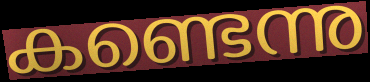
കണ്ടെന്നു